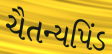
ચૈતન્યપિંડ